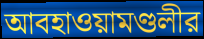
আবহাওয়ামণ্ডলীর